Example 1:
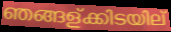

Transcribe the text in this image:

ഞങ്ങള്ക്കിടയില്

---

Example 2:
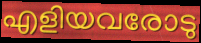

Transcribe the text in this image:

എളിയവരോടു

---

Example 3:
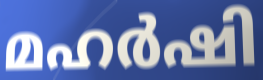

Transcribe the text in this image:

മഹർഷി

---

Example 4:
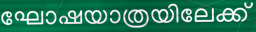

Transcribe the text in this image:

ഘോഷയാത്രയിലേക്ക്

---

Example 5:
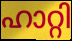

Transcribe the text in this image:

ഹാറ്റി